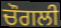
ਚੌਗਲੀ